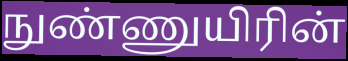
நுண்ணுயிரின்